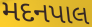
મદનપાલ